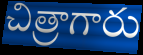
చిత్రాగారు